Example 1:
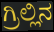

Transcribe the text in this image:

ಗ್ರಿಲ್ಲಿನ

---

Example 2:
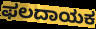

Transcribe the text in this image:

ಫಲದಾಯಕ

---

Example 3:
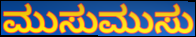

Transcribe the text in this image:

ಮುಸುಮುಸು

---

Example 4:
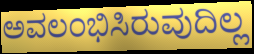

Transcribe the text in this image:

ಅವಲಂಭಿಸಿರುವುದಿಲ್ಲ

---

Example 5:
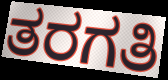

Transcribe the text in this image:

ತರಗತಿ